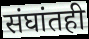
संघांतही